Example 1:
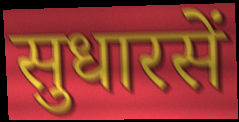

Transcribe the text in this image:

सुधारसें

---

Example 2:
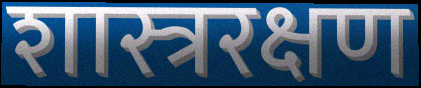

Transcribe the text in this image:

शास्त्ररक्षण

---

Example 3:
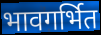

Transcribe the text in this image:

भावगर्भित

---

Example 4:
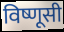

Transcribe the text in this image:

विष्णूसी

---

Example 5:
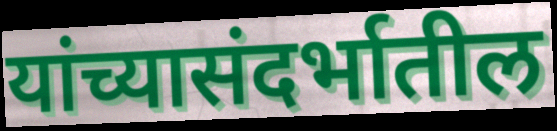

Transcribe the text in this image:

यांच्यासंदर्भातील